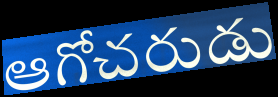
ఆగోచరుడు